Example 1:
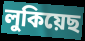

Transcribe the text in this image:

লুকিয়েছ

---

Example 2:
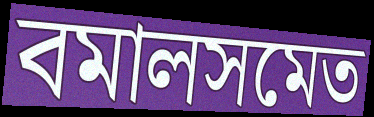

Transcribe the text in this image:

বমালসমেত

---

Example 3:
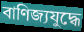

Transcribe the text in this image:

বাণিজ্যযুদ্ধে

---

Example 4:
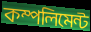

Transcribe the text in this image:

কম্পলিমেন্ট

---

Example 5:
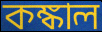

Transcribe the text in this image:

কঙ্কাল